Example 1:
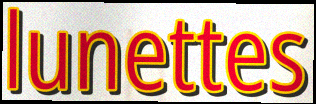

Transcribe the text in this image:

lunettes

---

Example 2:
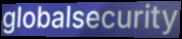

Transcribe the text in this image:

globalsecurity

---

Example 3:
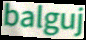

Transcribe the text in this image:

balguj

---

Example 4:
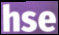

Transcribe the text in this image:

hse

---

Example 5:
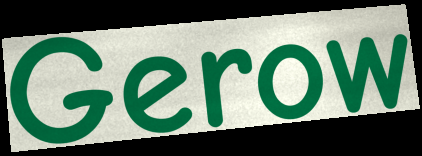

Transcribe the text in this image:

Gerow